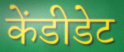
केंडीडेट